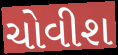
ચોવીશ